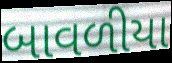
બાવળીયા